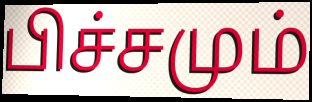
பிச்சமும்